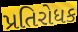
પ્રતિરોધક